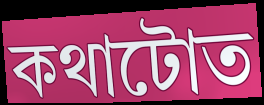
কথাটোত